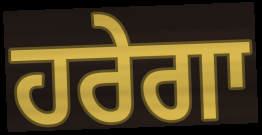
ਹਰੇਗਾ